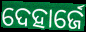
ଦେହାର୍ଜେ